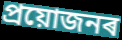
প্ৰয়োজনৰ